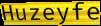
Huzeyfe